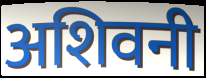
अशिवनी